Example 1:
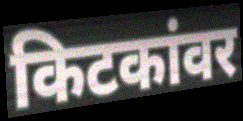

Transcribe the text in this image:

किटकांवर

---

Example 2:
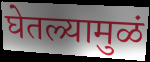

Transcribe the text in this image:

घेतल्यामुळं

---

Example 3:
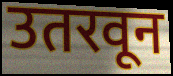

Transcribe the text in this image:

उतरवून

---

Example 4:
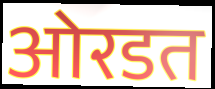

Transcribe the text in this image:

ओरडत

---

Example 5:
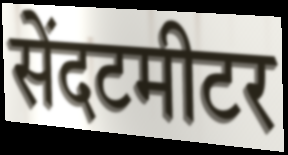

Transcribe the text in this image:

सेंदटमीटर